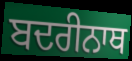
ਬਦਰੀਨਾਥ